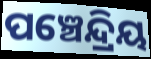
ପଞ୍ଚେନ୍ଦ୍ରିୟ